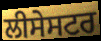
ਲੀਸੇਸਟਰ